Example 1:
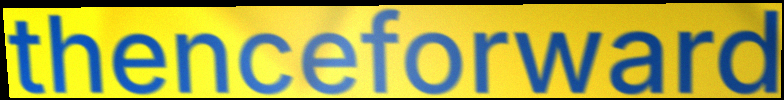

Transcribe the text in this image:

thenceforward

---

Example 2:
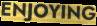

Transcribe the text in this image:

ENJOYING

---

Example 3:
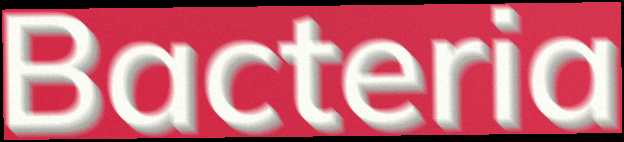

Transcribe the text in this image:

Bacteria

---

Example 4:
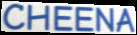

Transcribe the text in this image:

CHEENA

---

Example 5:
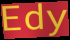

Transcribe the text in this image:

Edy